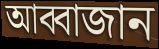
আব্বাজান